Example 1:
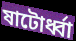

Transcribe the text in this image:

ষাটোর্ধ্বা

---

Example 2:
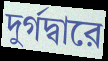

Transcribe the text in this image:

দুর্গদ্বারে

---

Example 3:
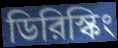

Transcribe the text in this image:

ডিরিস্কিং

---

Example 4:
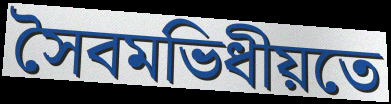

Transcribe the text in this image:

সৈবমভিধীয়তে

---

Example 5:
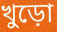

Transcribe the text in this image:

খুড়ো